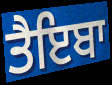
ਤੈਇਬਾ